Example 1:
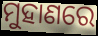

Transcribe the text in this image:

ମୁହାଣରେ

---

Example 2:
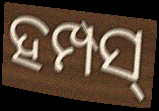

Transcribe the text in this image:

ହମ୍ପସ୍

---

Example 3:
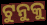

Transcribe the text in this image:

ଟୁନୁକୁ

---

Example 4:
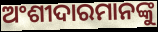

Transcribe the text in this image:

ଅଂଶୀଦାରମାନଙ୍କୁ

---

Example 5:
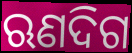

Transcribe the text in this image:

ଋଣଦିଗ